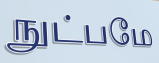
நுட்பமே